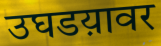
उघडय़ावर